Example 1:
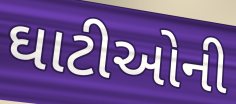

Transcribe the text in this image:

ઘાટીઓની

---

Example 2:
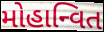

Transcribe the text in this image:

મોહાન્વિત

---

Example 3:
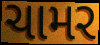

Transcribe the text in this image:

ચામર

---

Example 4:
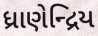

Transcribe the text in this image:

ધ્રાણેન્દ્રિય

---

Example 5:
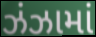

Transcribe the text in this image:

ઝંઝામાં